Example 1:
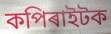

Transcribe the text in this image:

কপিৰাইটক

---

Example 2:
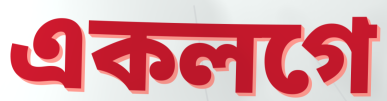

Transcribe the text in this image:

একলগে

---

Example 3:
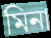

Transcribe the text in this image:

মিনা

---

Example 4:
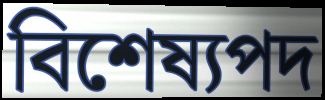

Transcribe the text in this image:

বিশেষ্যপদ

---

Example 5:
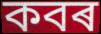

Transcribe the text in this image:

কবৰ